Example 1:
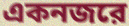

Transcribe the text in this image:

একনজরে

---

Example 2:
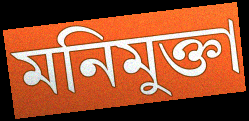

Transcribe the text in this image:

মনিমুক্তা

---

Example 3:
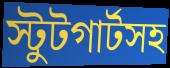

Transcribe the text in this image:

স্টুটগার্টসহ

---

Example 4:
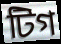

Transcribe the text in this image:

টিগ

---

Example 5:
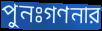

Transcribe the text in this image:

পুনঃগণনার